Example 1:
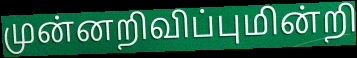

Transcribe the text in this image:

முன்னறிவிப்புமின்றி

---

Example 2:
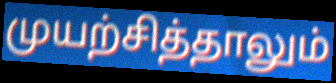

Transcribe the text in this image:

முயற்சித்தாலும்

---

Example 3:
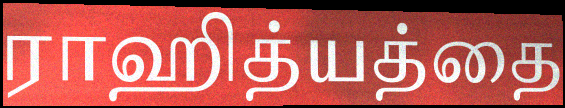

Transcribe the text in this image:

ராஹித்யத்தை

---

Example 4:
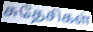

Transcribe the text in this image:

சுதேசிகள்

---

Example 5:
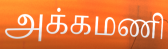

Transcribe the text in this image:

அக்கமணி